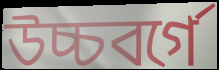
উচ্চবর্গে